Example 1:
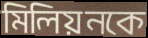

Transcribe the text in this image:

মিলিয়নকে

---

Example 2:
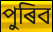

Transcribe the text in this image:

পুৰিব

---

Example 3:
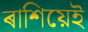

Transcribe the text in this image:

ৰাশিয়েই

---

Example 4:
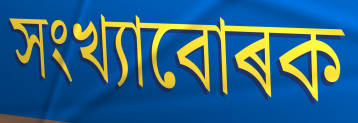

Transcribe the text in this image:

সংখ্যাবোৰক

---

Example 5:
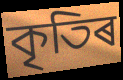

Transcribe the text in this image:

কৃতিৰ